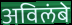
अविलंबे